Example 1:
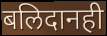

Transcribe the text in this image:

बलिदानही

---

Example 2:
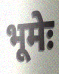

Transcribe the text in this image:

भूमेः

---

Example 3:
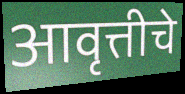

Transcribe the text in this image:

आवृत्तीचे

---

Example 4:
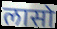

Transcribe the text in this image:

लासो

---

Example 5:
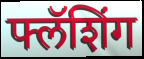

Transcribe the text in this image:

फ्लॅशिंग